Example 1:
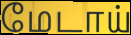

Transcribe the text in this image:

மேடாய்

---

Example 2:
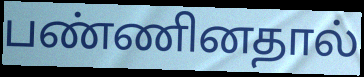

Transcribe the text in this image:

பண்ணினதால்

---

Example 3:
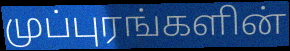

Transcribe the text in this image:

முப்புரங்களின்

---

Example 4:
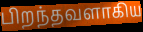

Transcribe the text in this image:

பிறந்தவளாகிய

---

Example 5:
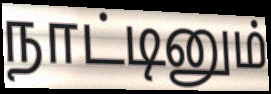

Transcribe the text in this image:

நாட்டினும்